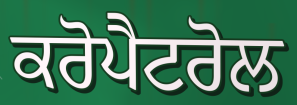
ਕਰੋਪੈਟਰੋਲ